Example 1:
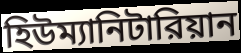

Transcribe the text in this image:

হিউম্যানিটারিয়ান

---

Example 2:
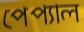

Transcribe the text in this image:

পেপ্যাল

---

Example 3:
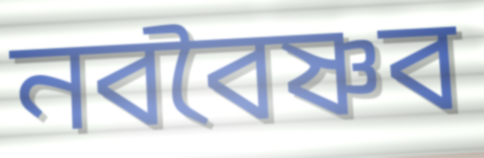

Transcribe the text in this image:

নববৈষ্ণব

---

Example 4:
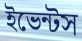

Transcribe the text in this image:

ইভেন্টস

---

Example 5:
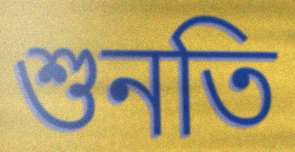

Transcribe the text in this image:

শুনতি